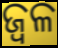
ଜ୍ୱଳ